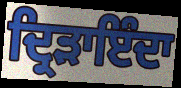
ਦ੍ਰਿੜਾਇੰਦਾ